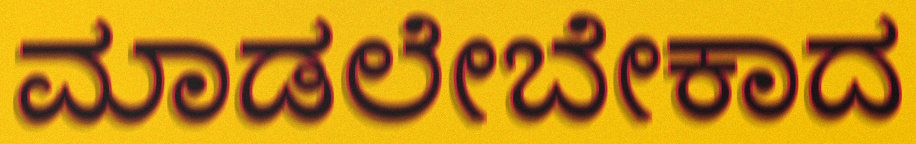
ಮಾಡಲೇಬೇಕಾದ